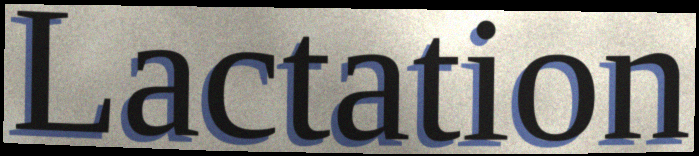
Lactation